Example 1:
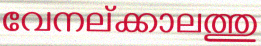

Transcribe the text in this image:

വേനല്ക്കാലത്തു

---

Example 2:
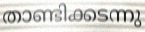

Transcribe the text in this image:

താണ്ടിക്കടന്നു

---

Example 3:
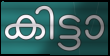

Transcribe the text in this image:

കിട്ടാ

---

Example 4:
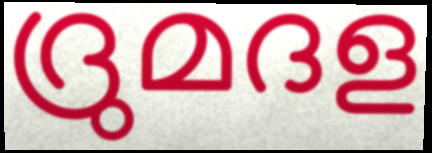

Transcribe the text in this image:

ദ്രുമദള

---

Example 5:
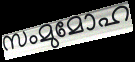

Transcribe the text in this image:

സംമുമോഹ